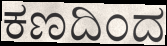
ಕಣದಿಂದ